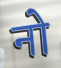
नो